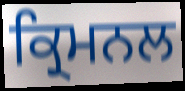
ਕ੍ਰਿਮਨਲ